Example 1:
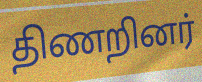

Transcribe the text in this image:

திணறினர்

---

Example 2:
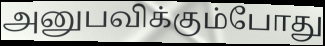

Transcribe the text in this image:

அனுபவிக்கும்போது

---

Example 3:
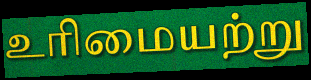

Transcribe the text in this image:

உரிமையற்று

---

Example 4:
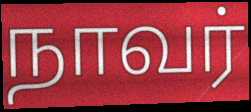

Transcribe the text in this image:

நாவர்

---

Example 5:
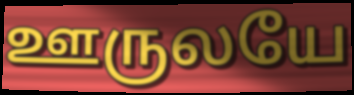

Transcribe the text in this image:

ஊருலயே